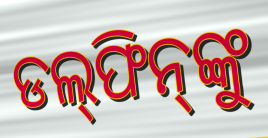
ଡଲ୍‌ଫିନ୍‌ଙ୍କୁ